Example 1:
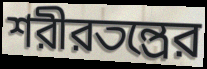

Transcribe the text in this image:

শরীরতন্ত্রের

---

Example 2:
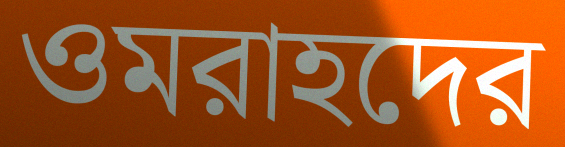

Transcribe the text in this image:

ওমরাহদের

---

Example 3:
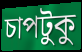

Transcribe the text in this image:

চাপটুকু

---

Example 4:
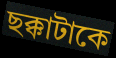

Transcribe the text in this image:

ছক্কাটাকে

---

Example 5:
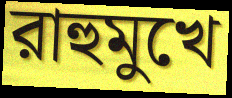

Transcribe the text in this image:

রাহুমুখে